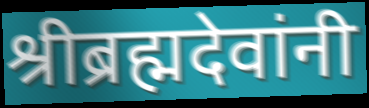
श्रीब्रह्मदेवांनी